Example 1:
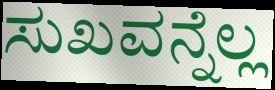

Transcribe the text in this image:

ಸುಖವನ್ನೆಲ್ಲ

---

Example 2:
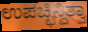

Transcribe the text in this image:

ಉಪಚ್ಛಿನ್ದಿತ್ವಾ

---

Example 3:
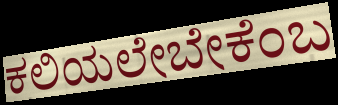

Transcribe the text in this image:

ಕಲಿಯಲೇಬೇಕೆಂಬ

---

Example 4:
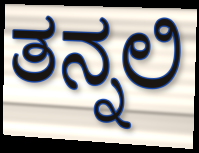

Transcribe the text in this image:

ತನ್ನಲಿ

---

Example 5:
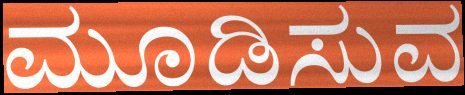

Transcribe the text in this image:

ಮೂಡಿಸುವ